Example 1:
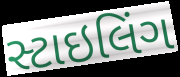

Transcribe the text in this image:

સ્ટાઇલિંગ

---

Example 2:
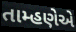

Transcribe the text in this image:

તામ્હણેએ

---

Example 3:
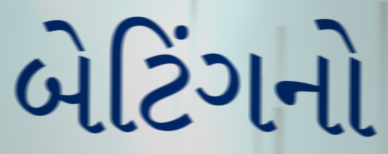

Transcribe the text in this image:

બેટિંગનો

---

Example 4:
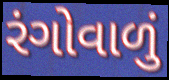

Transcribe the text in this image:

રંગોવાળું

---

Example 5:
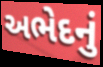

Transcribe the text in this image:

અભેદનું